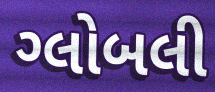
ગ્લોબલી